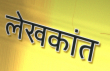
लेखकांत